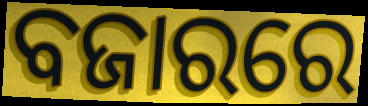
ବଜାରରେ